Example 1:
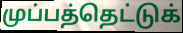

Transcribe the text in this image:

முப்பத்தெட்டுக்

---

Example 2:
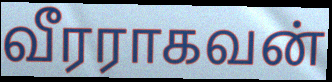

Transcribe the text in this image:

வீரராகவன்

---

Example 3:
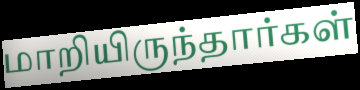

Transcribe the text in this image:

மாறியிருந்தார்கள்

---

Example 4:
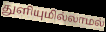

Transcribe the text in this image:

துளியுமில்லாமல்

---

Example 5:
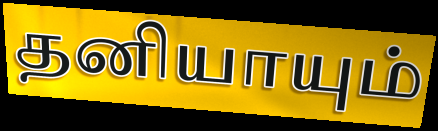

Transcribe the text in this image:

தனியாயும்